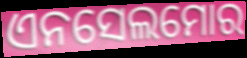
ଏନସେଲମୋର